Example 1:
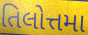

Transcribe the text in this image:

તિલોત્તમા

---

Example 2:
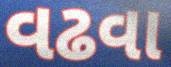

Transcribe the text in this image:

વઢવા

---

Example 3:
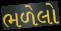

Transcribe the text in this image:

ભળેલો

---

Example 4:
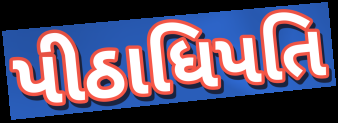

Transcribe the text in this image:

પીઠાધિપતિ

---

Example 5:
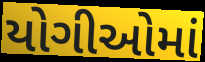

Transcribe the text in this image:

યોગીઓમાં